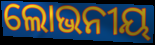
ଲୋଭନୀୟ